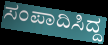
ಸಂಪಾದಿಸಿದ್ದ